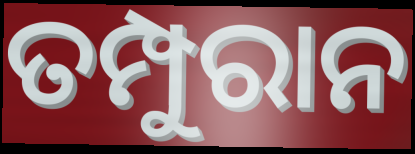
ତମ୍ପୁରାନ